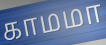
காமமா